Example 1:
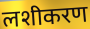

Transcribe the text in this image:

लशीकरण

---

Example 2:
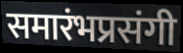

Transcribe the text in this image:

समारंभप्रसंगी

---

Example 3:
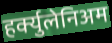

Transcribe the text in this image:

हर्क्युलेनिअम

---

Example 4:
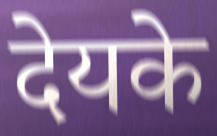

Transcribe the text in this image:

देयके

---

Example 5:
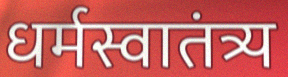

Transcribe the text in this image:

धर्मस्वातंत्र्य